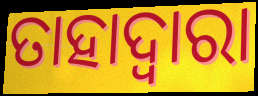
ତାହାଦ୍ୱାରା